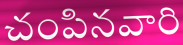
చంపినవారి